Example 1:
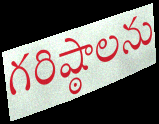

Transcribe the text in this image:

గరిష్ఠాలను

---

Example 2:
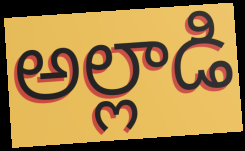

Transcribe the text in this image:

అల్లాడి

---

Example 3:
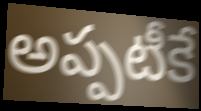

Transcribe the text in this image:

అప్పటీకే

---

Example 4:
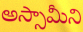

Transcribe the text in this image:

అస్సామీని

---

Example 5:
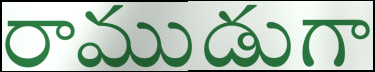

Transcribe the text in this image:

రాముడుగా